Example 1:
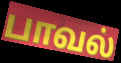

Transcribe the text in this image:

பாவல்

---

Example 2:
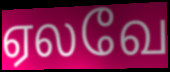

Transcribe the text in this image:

ஏலவே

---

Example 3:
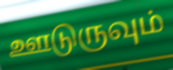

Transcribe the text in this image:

ஊடுருவும்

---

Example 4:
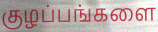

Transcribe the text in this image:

குழப்பங்களை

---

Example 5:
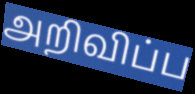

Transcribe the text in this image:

அறிவிப்ப